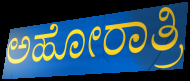
ಅಹೋರಾತ್ರಿ